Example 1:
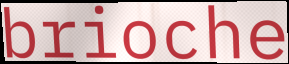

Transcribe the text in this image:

brioche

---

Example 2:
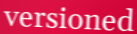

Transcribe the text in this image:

versioned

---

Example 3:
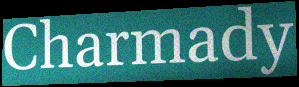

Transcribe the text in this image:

Charmady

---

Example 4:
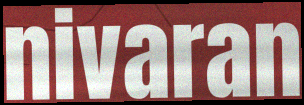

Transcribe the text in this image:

nivaran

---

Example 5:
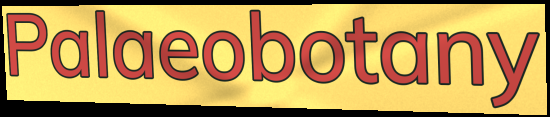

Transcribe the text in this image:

Palaeobotany